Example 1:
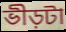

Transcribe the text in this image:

ভীড়টা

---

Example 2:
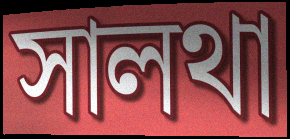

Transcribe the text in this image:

সালথা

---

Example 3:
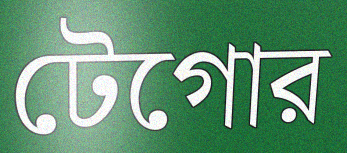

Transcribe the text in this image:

টেগোর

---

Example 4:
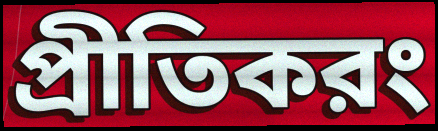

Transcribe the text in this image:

প্রীতিকরং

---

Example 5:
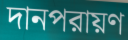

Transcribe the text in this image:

দানপরায়ণ